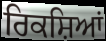
ਰਿਕਸ਼ਿਆਂ